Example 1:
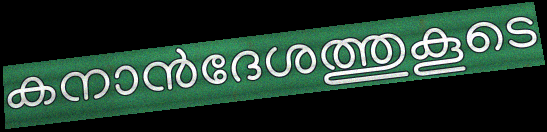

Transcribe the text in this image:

കനാൻദേശത്തുകൂടെ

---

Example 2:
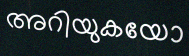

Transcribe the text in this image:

അറിയുകയോ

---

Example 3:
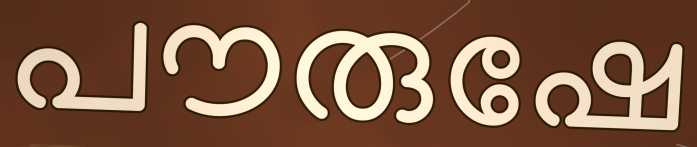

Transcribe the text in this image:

പൗരുഷേ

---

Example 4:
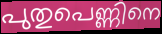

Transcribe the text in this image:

പുതുപെണ്ണിനെ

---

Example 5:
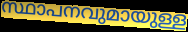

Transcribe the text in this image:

സ്ഥാപനവുമായുള്ള